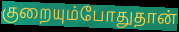
குறையும்போதுதான்